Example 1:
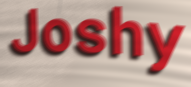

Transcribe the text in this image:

Joshy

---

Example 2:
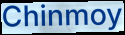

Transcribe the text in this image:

Chinmoy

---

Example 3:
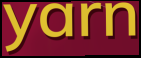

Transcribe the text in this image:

yarn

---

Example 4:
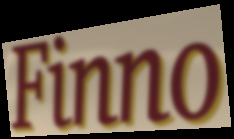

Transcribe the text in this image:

Finno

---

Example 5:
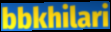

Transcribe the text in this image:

bbkhilari